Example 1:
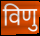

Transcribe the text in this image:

विणु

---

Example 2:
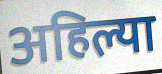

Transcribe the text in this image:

अहिल्या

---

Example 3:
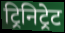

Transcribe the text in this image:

ट्रिनिट्रेट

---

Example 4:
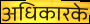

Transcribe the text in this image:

अधिकारके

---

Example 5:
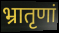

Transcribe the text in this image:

भ्रातृणां